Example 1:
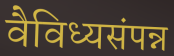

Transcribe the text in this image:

वैविध्यसंपन्न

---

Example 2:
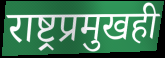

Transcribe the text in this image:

राष्ट्रप्रमुखही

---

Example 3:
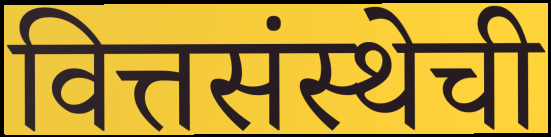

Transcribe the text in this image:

वित्तसंस्थेची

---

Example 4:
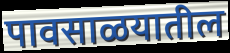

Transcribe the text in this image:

पावसाळयातील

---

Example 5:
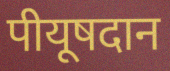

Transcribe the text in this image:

पीयूषदान